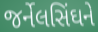
જર્નેલસિંઘને